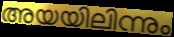
അയയിലിന്നും